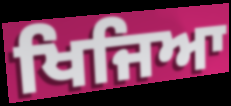
ਖਿਜਿਆ